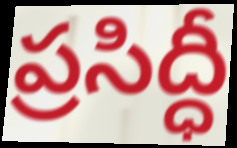
ప్రసిద్ధీ